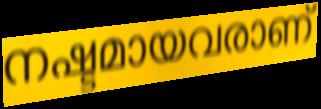
നഷ്ടമായവരാണ്